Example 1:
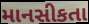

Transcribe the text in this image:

માનસીકતા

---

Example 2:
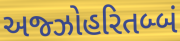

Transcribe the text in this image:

અજ્ઝોહરિતબ્બં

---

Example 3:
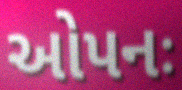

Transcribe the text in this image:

ઓપનઃ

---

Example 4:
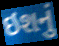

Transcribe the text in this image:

ઇશનું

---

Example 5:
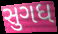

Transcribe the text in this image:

સુગધ